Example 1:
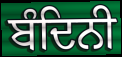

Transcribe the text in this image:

ਬੰਦਿਨੀ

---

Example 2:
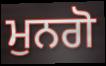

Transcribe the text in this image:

ਮੁਨਗੋ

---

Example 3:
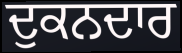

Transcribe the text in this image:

ਦੁਕਨਦਾਰ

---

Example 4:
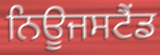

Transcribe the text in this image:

ਨਿਊਜਸਟੈਂਡ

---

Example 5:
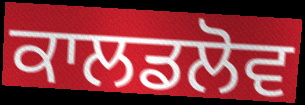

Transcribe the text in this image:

ਕਾਲਡਲੋਵ